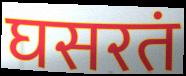
घसरतं